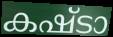
കഷ്ടാ